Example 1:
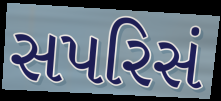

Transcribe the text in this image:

સપરિસં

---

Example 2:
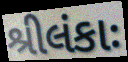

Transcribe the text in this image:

શ્રીલંકાઃ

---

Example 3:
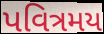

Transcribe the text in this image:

પવિત્રમય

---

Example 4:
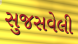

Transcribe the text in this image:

સુજસવેલી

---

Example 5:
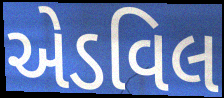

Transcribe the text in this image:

એડવિલ